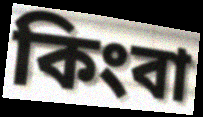
কিংবা